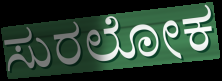
ಸುರಲೋಕ